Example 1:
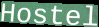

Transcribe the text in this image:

Hostel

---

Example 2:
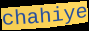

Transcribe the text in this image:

chahiye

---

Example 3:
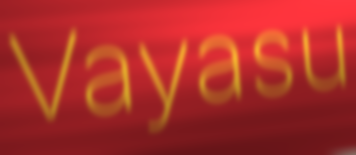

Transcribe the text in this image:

Vayasu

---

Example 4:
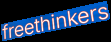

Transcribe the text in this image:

freethinkers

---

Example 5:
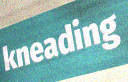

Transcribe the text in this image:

kneading